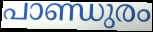
പാണ്ഡുരം